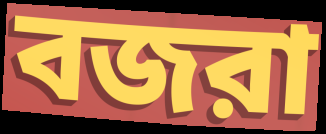
বজরা